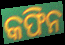
କଫିନ